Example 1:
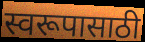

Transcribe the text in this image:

स्वरूपासाठी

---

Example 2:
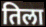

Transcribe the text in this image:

तिला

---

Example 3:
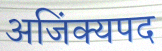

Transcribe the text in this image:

अजिंक्यपद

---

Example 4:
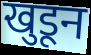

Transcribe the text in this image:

खुडून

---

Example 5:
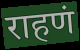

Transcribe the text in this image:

राहणं